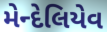
મેન્દેલિયેવ